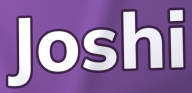
Joshi